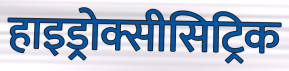
हाइड्रोक्सीसिट्रिक